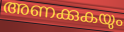
അണക്കുകയും